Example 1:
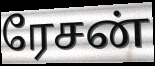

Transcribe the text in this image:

ரேசன்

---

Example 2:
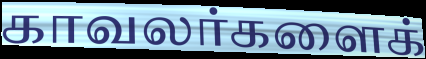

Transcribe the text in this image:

காவலர்களைக்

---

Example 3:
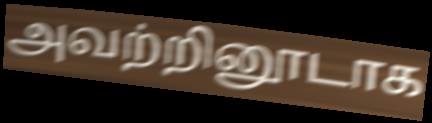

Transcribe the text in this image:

அவற்றினூடாக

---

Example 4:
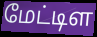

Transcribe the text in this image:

மேட்டிள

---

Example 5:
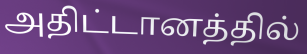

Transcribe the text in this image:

அதிட்டானத்தில்